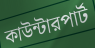
কাউন্টারপার্ট